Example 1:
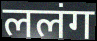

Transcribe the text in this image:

ललंग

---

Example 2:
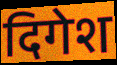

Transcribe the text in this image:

दिगेश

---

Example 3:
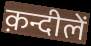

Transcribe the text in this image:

क़न्दीलें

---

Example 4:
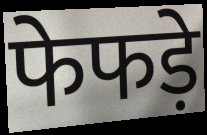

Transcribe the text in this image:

फेफड़े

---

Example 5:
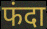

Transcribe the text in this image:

फंदा